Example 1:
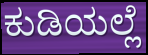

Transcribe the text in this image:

ಕುಡಿಯಲ್ಲೆ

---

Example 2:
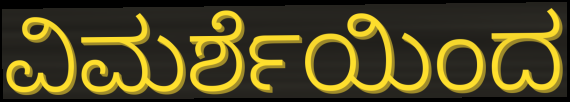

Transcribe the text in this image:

ವಿಮರ್ಶೆಯಿಂದ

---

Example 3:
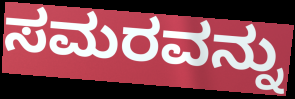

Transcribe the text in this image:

ಸಮರವನ್ನು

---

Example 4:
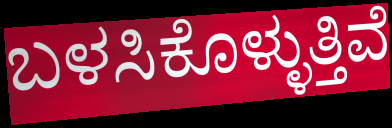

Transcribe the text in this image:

ಬಳಸಿಕೊಳ್ಳುತ್ತಿವೆ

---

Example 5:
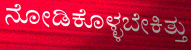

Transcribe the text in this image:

ನೋಡಿಕೊಳ್ಳಬೇಕಿತ್ತು